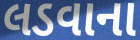
લડવાના